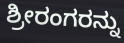
ಶ್ರೀರಂಗರನ್ನು